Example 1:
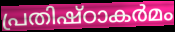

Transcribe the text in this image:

പ്രതിഷ്ഠാകർമം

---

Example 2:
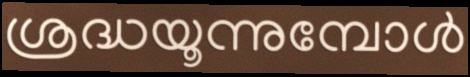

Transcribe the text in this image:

ശ്രദ്ധയൂന്നുമ്പോൾ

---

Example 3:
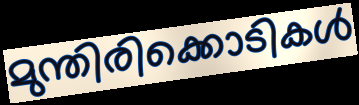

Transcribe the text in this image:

മുന്തിരിക്കൊടികൾ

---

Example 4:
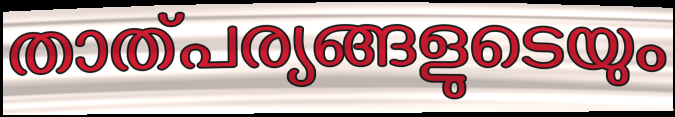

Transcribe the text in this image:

താത്പര്യങ്ങളുടെയും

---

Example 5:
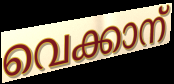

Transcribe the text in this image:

വെക്കാന്